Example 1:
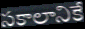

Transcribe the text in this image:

సకాలానికే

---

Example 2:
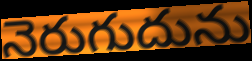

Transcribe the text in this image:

నెరుగుదును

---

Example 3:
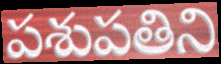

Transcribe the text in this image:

పశుపతిని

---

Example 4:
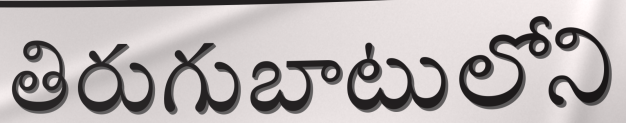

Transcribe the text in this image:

తిరుగుబాటులోని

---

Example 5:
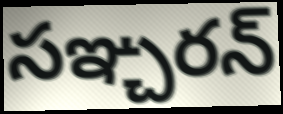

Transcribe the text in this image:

సఞ్చరన్